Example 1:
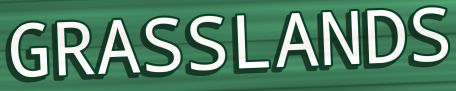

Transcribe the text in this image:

GRASSLANDS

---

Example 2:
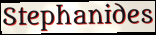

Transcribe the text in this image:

Stephanides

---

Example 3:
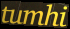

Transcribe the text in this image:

tumhi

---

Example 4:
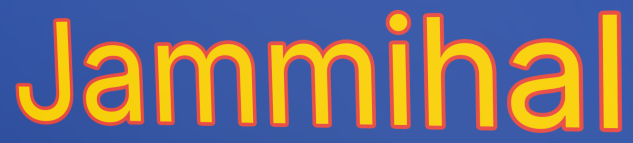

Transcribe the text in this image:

Jammihal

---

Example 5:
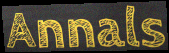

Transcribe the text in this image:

Annals